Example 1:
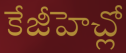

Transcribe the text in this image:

కేజీహెచ్లో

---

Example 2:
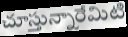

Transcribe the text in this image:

చూస్తున్నారేమిటి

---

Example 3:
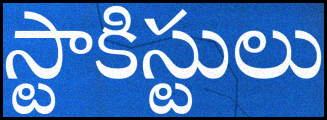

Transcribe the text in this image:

స్టాకిస్టులు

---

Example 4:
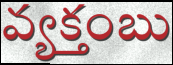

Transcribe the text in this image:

వ్యక్తంబు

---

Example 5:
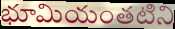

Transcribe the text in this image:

భూమియంతటిని